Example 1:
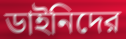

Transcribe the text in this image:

ডাইনিদের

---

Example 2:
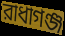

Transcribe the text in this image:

রাধাগঞ্জ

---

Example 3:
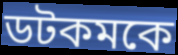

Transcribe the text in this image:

ডটকমকে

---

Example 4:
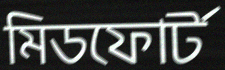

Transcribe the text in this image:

মিডফোর্ট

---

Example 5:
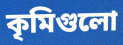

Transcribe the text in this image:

কৃমিগুলো